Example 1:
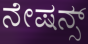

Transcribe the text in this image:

ನೇಷನ್ಸ್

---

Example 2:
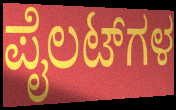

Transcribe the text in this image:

ಪೈಲಟ್‌ಗಳ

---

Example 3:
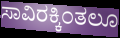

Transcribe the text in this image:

ಸಾವಿರಕ್ಕಿಂತಲೂ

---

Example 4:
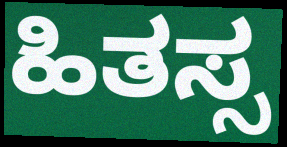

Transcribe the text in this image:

ಹಿತಸ್ಸ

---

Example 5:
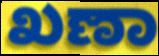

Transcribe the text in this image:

ಖಣಾ